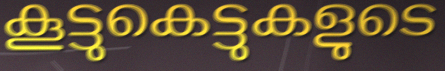
കൂട്ടുകെട്ടുകളുടെ